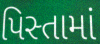
પિસ્તામાં